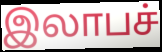
இலாபச்